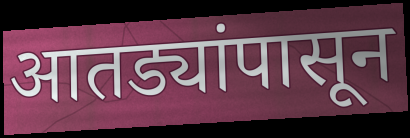
आतड्यांपासून